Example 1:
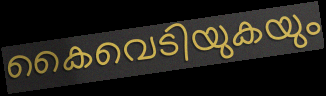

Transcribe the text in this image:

കൈവെടിയുകയും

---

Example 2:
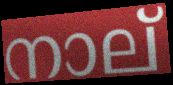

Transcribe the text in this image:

നാല്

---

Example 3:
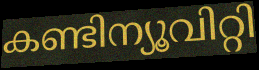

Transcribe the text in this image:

കണ്ടിന്യൂവിറ്റി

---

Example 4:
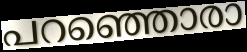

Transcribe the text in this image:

പറഞ്ഞൊരാ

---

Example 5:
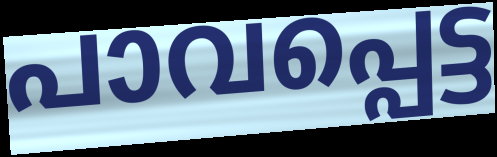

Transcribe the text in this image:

പാവപ്പെട്ട